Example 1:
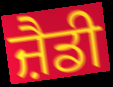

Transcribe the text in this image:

ਜ਼ੈਡੀ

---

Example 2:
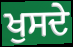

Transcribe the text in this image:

ਖੁਸਦੇ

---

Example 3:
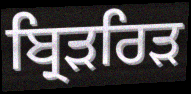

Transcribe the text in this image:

ਬ੍ਰਿੜਰਿੜ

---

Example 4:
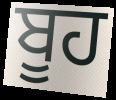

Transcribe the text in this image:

ਬੂਹ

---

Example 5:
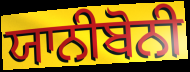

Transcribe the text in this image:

ਯਾਨੀਬੋਨੀ